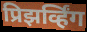
प्रिझर्व्हिंग